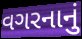
વગરનાનું